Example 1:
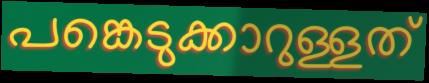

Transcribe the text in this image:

പങ്കെടുക്കാറുള്ളത്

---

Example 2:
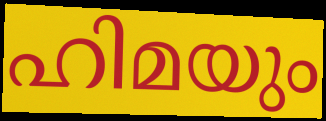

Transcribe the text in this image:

ഹിമയും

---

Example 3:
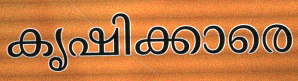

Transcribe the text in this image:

കൃഷിക്കാരെ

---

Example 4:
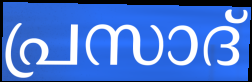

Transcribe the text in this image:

പ്രസാദ്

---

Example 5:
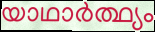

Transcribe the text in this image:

യാഥാർത്ഥ്യം